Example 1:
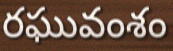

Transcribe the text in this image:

రఘువంశం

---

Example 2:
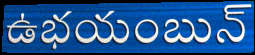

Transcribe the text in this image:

ఉభయంబున్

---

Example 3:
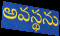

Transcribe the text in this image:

అవస్థను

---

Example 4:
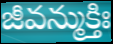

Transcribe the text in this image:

జీవన్ముక్తిః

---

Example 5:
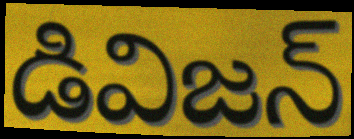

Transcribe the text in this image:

డివిజన్